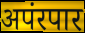
अपंरपार